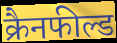
क्रैनफील्ड